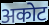
अकोट